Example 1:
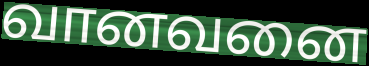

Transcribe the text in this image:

வானவனை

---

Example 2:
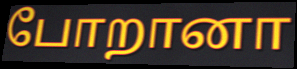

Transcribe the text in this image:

போறானா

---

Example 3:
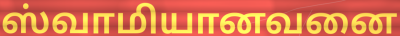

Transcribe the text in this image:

ஸ்வாமியானவனை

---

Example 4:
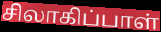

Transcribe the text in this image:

சிலாகிப்பாள்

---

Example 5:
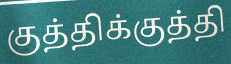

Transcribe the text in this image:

குத்திக்குத்தி